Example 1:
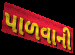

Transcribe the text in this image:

પાળવાની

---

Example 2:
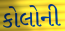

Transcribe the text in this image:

કોલોની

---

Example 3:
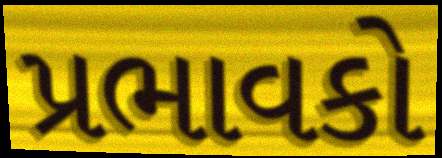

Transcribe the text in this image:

પ્રભાવકો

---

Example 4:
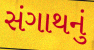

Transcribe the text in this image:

સંગાથનું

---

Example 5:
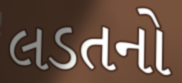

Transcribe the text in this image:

લડતનો